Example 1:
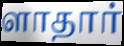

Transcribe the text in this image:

ளாதார்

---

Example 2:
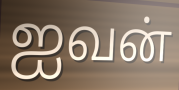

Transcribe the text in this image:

ஐவன்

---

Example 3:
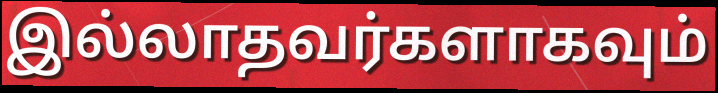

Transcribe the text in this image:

இல்லாதவர்களாகவும்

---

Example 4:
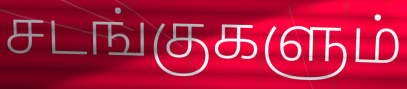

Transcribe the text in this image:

சடங்குகளும்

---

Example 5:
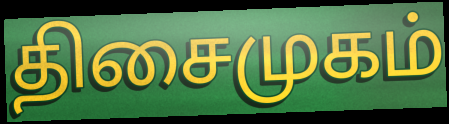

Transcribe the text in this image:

திசைமுகம்